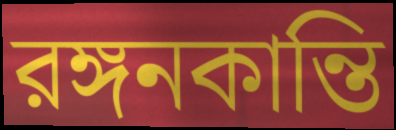
রঙ্গনকান্তি